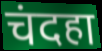
चंदहा